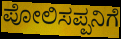
ಪೋಲಿಸಪ್ಪನಿಗೆ